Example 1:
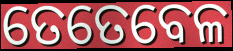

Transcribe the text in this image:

ତେତେବେଳ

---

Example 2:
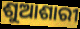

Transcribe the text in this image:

ଶୁଆଶାରୀ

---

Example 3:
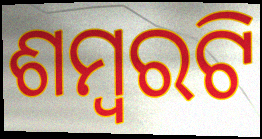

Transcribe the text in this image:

ଶମ୍ବରଟି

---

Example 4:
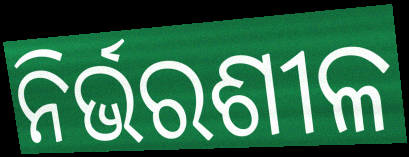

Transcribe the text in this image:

ନିର୍ଭରଶୀଳ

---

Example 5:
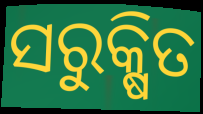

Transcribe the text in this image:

ସରୁକ୍ଷିତ